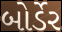
બોર્ડેર